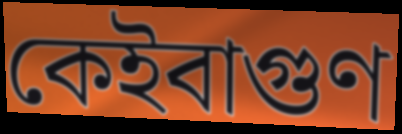
কেইবাগুণ